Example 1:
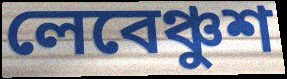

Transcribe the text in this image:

লেবেঞ্চুশ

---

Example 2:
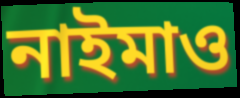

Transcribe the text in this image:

নাইমাও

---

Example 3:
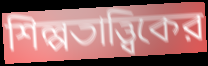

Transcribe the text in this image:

শিল্পতাত্ত্বিকের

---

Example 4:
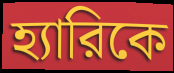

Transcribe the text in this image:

হ্যারিকে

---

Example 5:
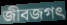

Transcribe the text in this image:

জীবজগৎ